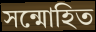
সন্মোহিত